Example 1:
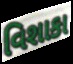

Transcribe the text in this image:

વિશાકા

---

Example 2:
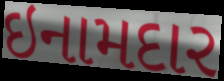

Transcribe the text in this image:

ઇનામદાર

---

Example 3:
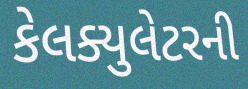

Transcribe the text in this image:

કેલક્યુલેટરની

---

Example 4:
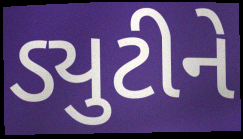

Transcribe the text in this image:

ડ્યુટીને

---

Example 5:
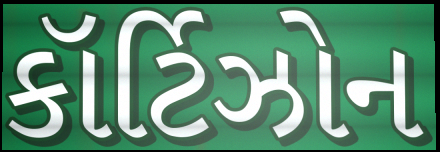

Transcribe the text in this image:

કૉર્ટિઝોન